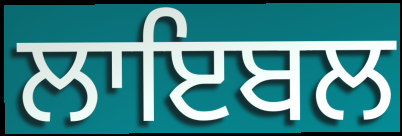
ਲਾਇਬਲ